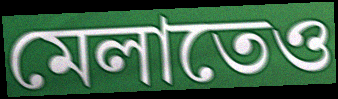
মেলাতেও